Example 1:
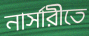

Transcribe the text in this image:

নার্সারীতে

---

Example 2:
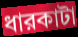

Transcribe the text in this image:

ধারকাটা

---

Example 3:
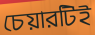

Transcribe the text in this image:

চেয়ারটিই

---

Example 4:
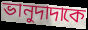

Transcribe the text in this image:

ভানুদাদাকে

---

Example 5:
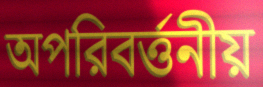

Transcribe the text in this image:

অপরিবর্ত্তনীয়